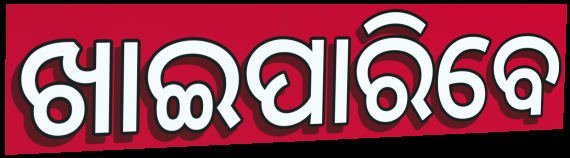
ଖାଇପାରିବେ